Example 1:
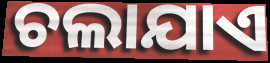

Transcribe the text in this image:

ଚଲାଯାଏ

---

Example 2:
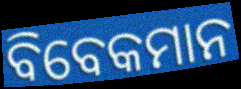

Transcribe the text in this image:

ବିବେକମାନ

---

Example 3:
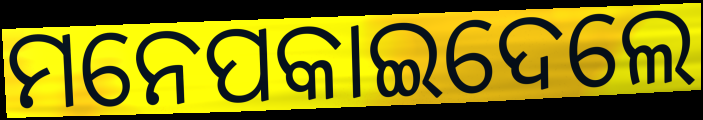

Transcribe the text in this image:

ମନେପକାଇଦେଲେ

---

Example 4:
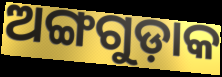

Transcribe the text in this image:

ଅଙ୍ଗଗୁଡ଼ାକ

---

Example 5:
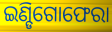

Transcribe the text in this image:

ଇଣ୍ଡିଗୋଫେରା